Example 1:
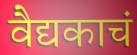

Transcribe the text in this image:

वैद्यकाचं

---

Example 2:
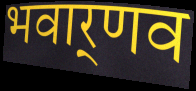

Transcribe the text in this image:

भवार्णव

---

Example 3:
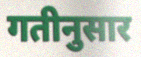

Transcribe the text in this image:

गतीनुसार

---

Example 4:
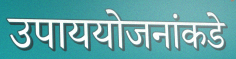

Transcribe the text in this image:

उपाययोजनांकडे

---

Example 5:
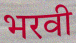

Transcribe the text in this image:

भरवी